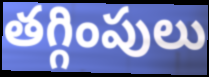
తగ్గింపులు